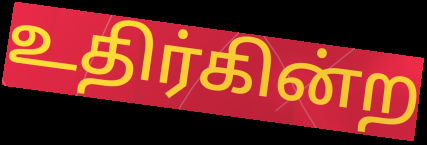
உதிர்கின்ற